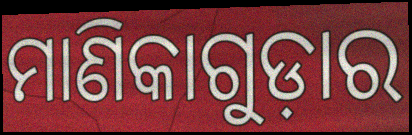
ମାଣିକାଗୁଡ଼ାର